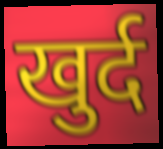
खुर्द